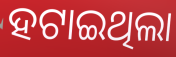
ହଟାଇଥିଲା